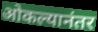
ओकल्यानंतर